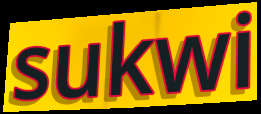
sukwi